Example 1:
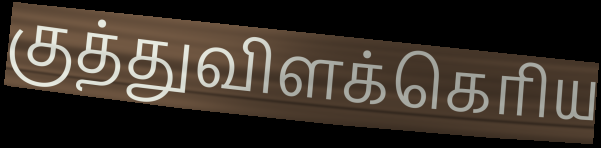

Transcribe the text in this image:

குத்துவிளக்கெரிய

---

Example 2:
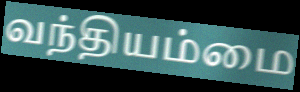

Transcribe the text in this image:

வந்தியம்மை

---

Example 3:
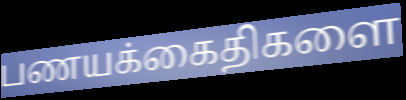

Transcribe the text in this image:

பணயக்கைதிகளை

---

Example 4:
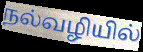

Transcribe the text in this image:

நல்வழியில்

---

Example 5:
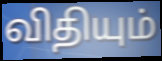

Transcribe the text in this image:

விதியும்